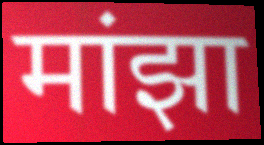
मांझा